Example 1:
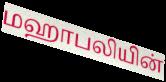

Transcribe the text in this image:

மஹாபலியின்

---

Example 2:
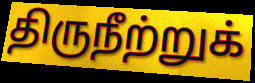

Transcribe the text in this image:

திருநீற்றுக்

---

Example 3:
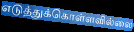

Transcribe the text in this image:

எடுத்துக்கொள்ளவில்லை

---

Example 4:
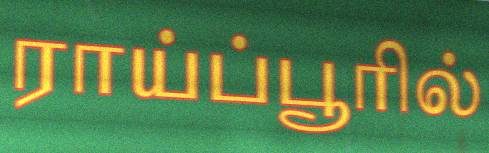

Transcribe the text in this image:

ராய்ப்பூரில்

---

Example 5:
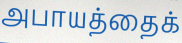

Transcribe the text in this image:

அபாயத்தைக்